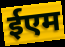
ईएम